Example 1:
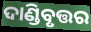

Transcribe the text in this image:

ଦାଣ୍ଡିବୃତ୍ତର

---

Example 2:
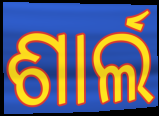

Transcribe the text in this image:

ଶାର୍ଲ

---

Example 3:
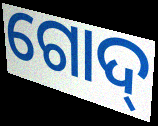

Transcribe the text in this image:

ଗୋଦ୍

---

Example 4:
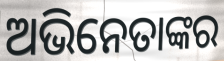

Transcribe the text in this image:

ଅଭିନେତାଙ୍କର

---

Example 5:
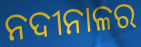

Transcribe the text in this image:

ନଦୀନାଳର